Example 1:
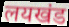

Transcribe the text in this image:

लयखंड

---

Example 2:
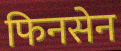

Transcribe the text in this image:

फिनसेन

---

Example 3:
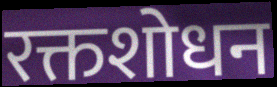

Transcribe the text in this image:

रक्तशोधन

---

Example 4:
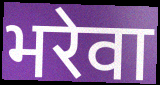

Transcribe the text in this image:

भरेवा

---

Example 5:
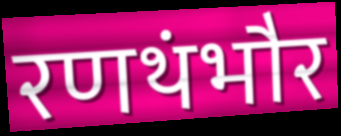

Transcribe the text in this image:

रणथंभौर